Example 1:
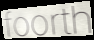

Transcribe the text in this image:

foorth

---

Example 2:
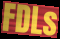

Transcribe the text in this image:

FDLs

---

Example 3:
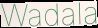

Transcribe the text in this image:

Wadala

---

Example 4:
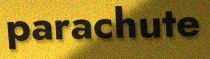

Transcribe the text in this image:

parachute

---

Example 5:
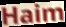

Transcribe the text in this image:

Haim